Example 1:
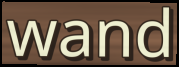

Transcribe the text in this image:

wand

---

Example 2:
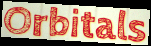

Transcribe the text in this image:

Orbitals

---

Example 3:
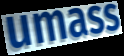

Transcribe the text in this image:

umass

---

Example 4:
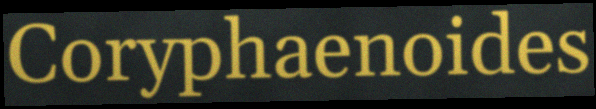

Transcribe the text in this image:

Coryphaenoides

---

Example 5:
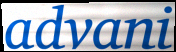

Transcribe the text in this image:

advani